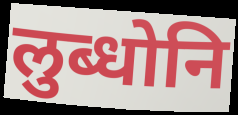
लुब्धोनि